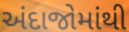
અંદાજોમાંથી